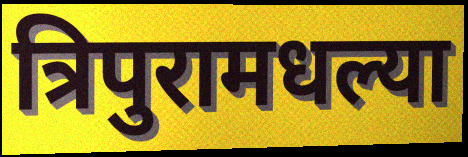
त्रिपुरामधल्या